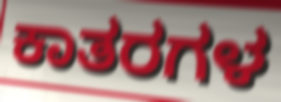
ಕಾತರಗಳ